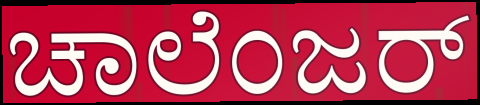
ಚಾಲೆಂಜರ್